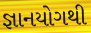
જ્ઞાનયોગથી